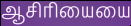
ஆசிரியையை